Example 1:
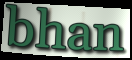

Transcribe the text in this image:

bhan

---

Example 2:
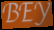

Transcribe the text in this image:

BEY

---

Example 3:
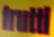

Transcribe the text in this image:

frutti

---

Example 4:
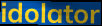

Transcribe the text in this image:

idolator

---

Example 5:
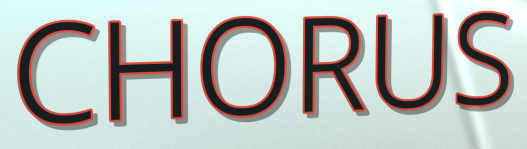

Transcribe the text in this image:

CHORUS